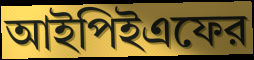
আইপিইএফের